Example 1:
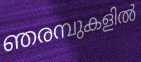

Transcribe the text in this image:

ഞരമ്പുകളിൽ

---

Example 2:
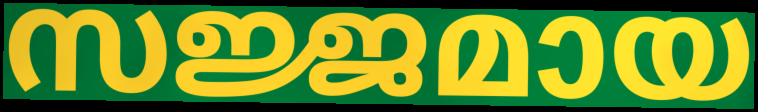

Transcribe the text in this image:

സജ്ജമായ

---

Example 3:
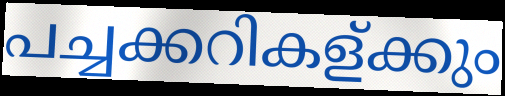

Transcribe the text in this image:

പച്ചക്കറികള്ക്കും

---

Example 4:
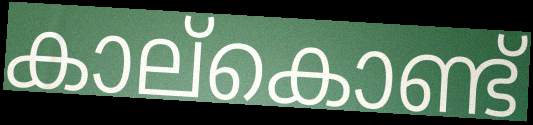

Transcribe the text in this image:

കാല്കൊണ്ട്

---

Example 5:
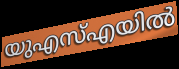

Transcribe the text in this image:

യുഎസ്എയിൽ